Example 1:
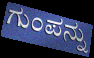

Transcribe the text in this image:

ಗುಂಪನ್ನು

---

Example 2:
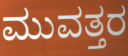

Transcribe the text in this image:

ಮುವತ್ತರ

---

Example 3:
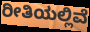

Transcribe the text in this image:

ರೀತಿಯಲ್ಲಿವೆ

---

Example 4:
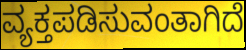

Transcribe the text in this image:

ವ್ಯಕ್ತಪಡಿಸುವಂತಾಗಿದೆ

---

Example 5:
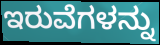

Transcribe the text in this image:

ಇರುವೆಗಳನ್ನು